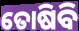
ତୋଷିବି